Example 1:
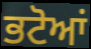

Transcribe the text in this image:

ਭਟੋਆਂ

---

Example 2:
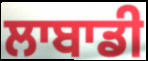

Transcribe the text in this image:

ਲਾਬਾਡੀ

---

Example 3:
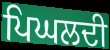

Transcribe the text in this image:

ਪਿਘਲਦੀ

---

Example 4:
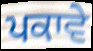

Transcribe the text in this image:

ਪਕਾਵੇ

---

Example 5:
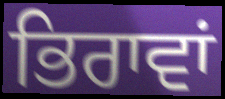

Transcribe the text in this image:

ਭਿਰਾਵਾਂ